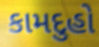
કામદુહો